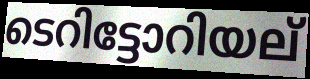
ടെറിട്ടോറിയല്